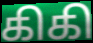
கிகி